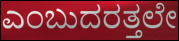
ಎಂಬುದರತ್ತಲೇ